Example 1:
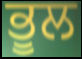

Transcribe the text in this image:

ਭੂਲ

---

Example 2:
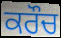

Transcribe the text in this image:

ਕਰੌਚ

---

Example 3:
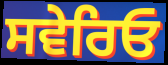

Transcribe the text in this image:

ਸਵੇਰਿਓ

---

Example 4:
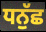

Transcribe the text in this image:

ਧਨੁੱਛ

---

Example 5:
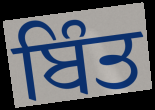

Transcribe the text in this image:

ਬਿੰਤ